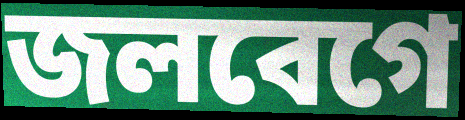
জলবেগে